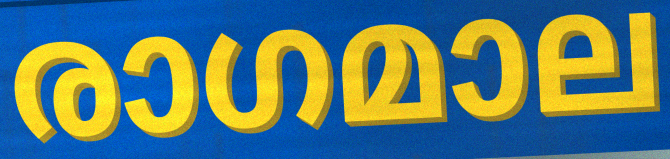
രാഗമാല